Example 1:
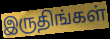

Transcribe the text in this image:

இருதிங்கள்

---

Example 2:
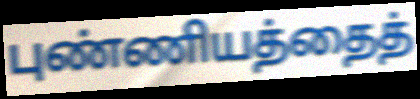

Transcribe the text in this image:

புண்ணியத்தைத்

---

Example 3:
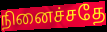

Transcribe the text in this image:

நினைச்சதே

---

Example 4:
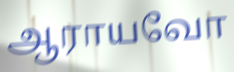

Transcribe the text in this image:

ஆராயவோ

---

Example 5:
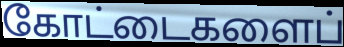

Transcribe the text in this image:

கோட்டைகளைப்